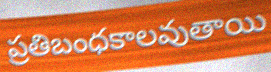
ప్రతిబంధకాలవుతాయి